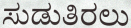
ಸುಡುತಿರಲು